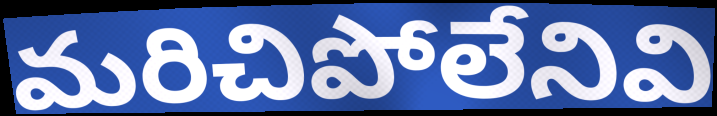
మరిచిపోలేనివి